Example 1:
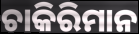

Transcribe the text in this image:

ଚାକିରିମାନ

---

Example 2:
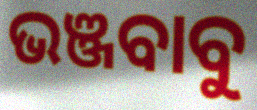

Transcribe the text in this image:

ଭଞ୍ଜବାବୁ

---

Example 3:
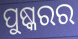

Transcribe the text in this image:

ପୁଷ୍କରର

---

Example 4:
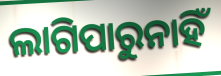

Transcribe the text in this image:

ଲାଗିପାରୁନାହିଁ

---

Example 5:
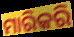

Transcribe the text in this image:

ମାରିକରି